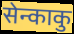
सेन्काकु